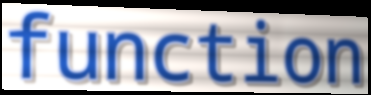
function